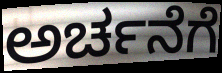
ಅರ್ಚನೆಗೆ